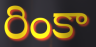
రింకా